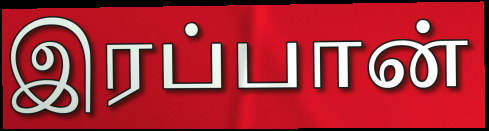
இரப்பான்